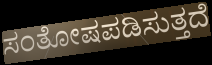
ಸಂತೋಷಪಡಿಸುತ್ತದೆ